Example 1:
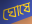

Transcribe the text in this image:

ঘোষে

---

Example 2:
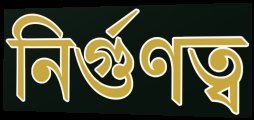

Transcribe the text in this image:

নির্গুণত্ব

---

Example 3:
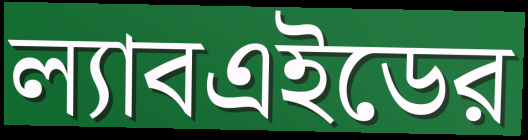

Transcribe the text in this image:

ল্যাবএইডের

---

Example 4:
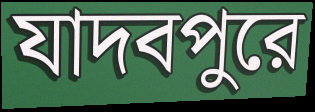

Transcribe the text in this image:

যাদবপুরে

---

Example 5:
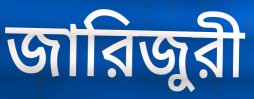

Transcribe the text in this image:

জারিজুরী